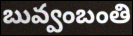
బువ్వంబంతి